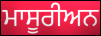
ਮਾਸੂਰੀਅਨ